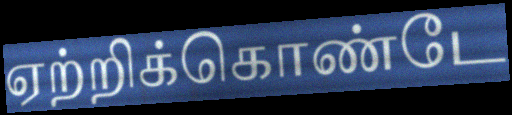
ஏற்றிக்கொண்டே